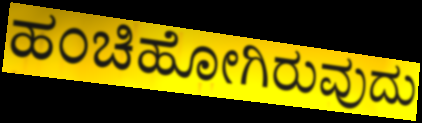
ಹಂಚಿಹೋಗಿರುವುದು